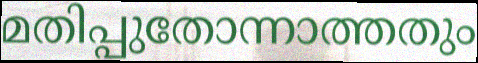
മതിപ്പുതോന്നാത്തതും